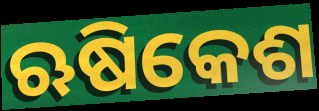
ଋଷିକେଶ